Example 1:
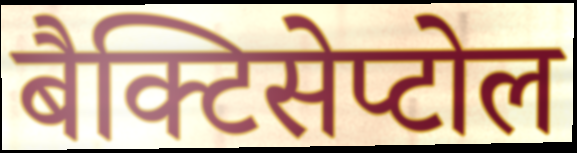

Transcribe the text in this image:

बैक्टिसेप्टोल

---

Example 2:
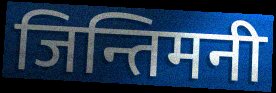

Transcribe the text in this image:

जिन्तिमनी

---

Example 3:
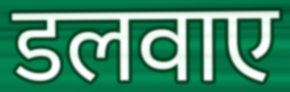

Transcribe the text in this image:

डलवाए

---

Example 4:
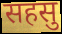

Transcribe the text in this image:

सहसु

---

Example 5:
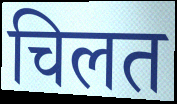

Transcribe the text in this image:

चिलत